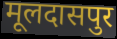
मूलदासपुर